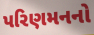
પરિણમનનો